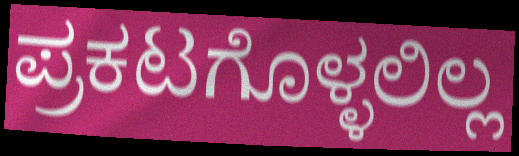
ಪ್ರಕಟಗೊಳ್ಳಲಿಲ್ಲ